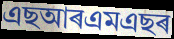
এছআৰএমএছৰ